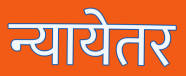
न्यायेतर